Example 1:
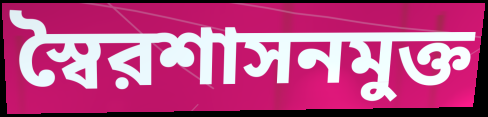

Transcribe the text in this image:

স্বৈরশাসনমুক্ত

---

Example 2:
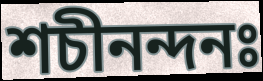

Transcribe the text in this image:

শচীনন্দনঃ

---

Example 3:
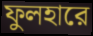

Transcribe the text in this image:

ফুলহারে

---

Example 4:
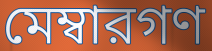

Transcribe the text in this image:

মেম্বারগণ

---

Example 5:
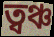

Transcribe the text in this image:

ত্বঞ্চ